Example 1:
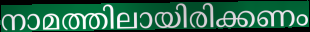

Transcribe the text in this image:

നാമത്തിലായിരിക്കണം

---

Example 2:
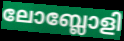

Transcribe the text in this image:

ലോബ്ലോളി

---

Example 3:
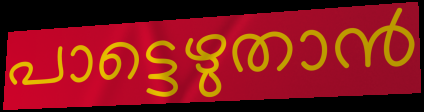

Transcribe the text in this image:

പാട്ടെഴുതാൻ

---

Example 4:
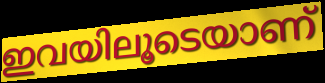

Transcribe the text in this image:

ഇവയിലൂടെയാണ്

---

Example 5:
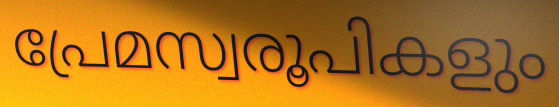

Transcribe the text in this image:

പ്രേമസ്വരൂപികളും